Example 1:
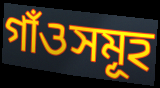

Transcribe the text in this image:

গাঁওসমূহ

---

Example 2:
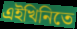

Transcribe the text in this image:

এইখিনিতে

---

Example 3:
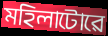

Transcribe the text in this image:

মহিলাটোৱে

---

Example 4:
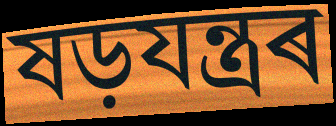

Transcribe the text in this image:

ষড়যন্ত্ৰৰ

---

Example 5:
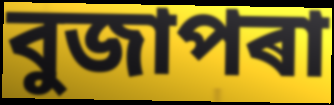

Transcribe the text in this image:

বুজাপৰা